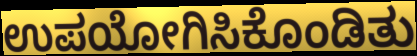
ಉಪಯೋಗಿಸಿಕೊಂಡಿತು